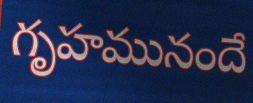
గృహమునందే